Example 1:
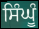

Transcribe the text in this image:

ਸਿੰਘੂੰ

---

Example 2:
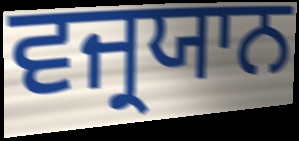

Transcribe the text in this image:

ਵਜ੍ਰਯਾਨ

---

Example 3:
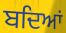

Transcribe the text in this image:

ਬਦਿਆਂ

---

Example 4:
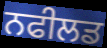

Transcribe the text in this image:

ਨਫੀਲਡ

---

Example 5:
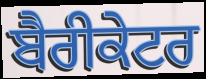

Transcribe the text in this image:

ਬੈਰੀਕੇਟਰ